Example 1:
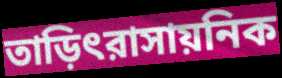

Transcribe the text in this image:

তাড়িৎরাসায়নিক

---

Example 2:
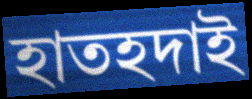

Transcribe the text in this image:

হাতহদাই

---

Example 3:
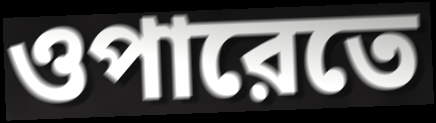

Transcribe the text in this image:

ওপারেতে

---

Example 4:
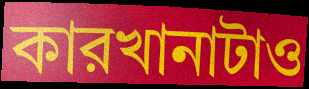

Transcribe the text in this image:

কারখানাটাও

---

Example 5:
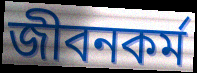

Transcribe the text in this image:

জীবনকর্ম